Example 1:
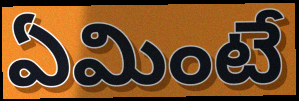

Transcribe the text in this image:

ఏమింటే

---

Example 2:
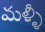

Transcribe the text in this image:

మళ్ళీ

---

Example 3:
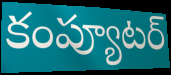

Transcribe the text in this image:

కంప్యూటర్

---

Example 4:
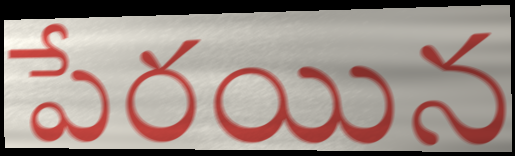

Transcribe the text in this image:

పేరయిన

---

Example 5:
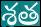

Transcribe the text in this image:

శత